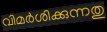
വിമർശിക്കുന്നതു